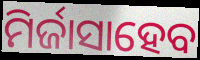
ମିର୍ଜାସାହେବ